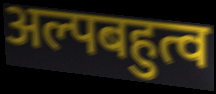
अल्पबहुत्व